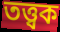
তত্ত্বক